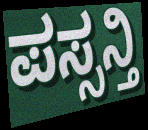
ಪಸ್ಸನ್ತಿ